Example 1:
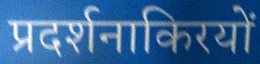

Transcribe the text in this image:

प्रदर्शनाकिरयों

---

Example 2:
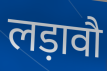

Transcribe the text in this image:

लड़ावौ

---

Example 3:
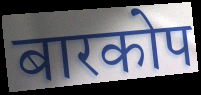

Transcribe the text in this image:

बारकोप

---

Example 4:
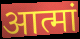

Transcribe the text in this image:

आत्मां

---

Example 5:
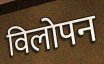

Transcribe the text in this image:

विलोपन